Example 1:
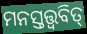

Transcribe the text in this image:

ମନସ୍ତତ୍ତ୍ଵବିତ୍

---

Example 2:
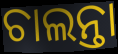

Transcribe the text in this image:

ଚାଲନ୍ତା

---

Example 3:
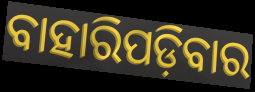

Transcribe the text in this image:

ବାହାରିପଡ଼ିବାର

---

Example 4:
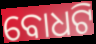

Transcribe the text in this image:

ବୋଧଟି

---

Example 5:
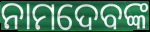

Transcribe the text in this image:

ନାମଦେବଙ୍କ